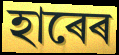
হাৰেৰ